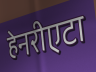
हेनरीएटा